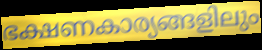
ഭക്ഷണകാര്യങ്ങളിലും